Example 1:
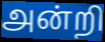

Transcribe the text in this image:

அன்றி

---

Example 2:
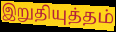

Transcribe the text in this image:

இறுதியுத்தம்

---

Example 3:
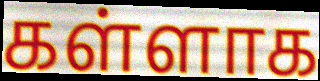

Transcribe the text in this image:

கள்ளாக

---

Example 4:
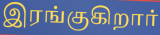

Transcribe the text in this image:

இரங்குகிறார்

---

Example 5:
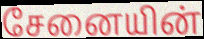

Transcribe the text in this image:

சேனையின்